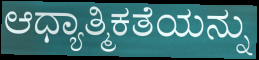
ಆಧ್ಯಾತ್ಮಿಕತೆಯನ್ನು